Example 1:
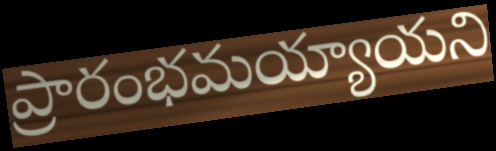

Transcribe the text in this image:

ప్రారంభమయ్యాయని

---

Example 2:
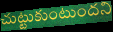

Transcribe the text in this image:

చుట్టుకుంటుందని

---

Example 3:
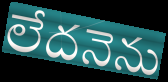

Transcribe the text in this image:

లేదనెను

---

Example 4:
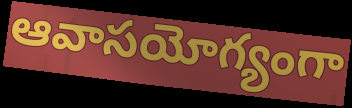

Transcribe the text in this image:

ఆవాసయోగ్యంగా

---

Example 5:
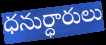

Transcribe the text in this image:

ధనుర్ధారులు